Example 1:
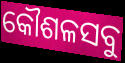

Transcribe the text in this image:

କୌଶଳସବୁ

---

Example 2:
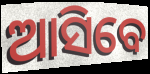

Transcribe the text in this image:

ଆସିବେ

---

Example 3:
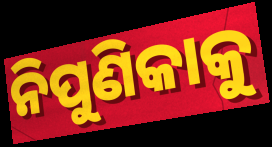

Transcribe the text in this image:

ନିପୁଣିକାକୁ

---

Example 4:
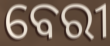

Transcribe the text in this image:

ବେରୀ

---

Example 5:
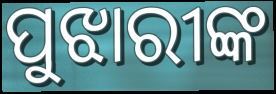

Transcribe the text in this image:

ପୁଝାରୀଙ୍କ